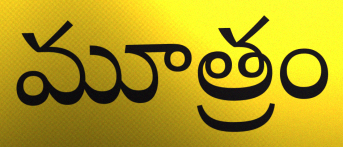
మూత్రం